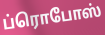
ப்ரொபோஸ்